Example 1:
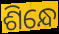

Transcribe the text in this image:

ଶିନ୍ଧେ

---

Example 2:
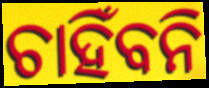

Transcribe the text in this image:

ଚାହିଁବନି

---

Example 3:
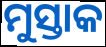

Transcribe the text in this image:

ମୁସ୍ତାକ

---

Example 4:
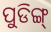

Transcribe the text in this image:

ପୁଡିଙ୍ଗ୍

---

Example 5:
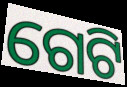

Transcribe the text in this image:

ଗେଟି